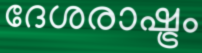
ദേശരാഷ്ട്രം